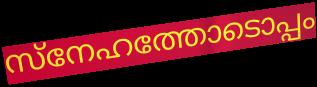
സ്നേഹത്തോടൊപ്പം